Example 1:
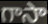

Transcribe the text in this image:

గాసా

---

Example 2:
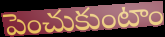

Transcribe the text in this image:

పెంచుకుంటాం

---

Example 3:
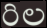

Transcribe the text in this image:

రిల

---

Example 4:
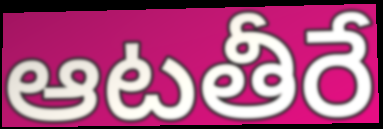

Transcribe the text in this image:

ఆటతీరే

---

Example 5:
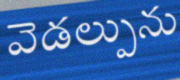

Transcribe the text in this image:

వెడల్పును